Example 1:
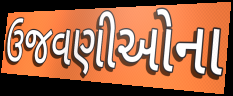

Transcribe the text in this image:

ઉજવણીઓના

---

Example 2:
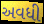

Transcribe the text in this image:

અવધી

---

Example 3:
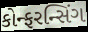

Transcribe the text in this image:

કોન્ફરન્સિંગ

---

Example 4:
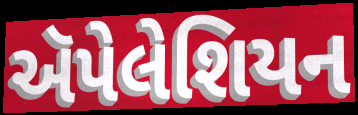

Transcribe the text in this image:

ઍપેલેશિયન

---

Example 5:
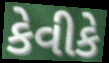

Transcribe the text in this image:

કેવીકે